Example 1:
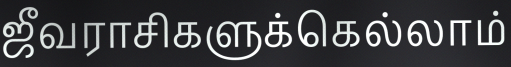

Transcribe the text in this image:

ஜீவராசிகளுக்கெல்லாம்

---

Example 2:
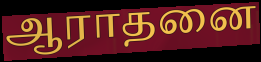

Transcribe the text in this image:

ஆராதனை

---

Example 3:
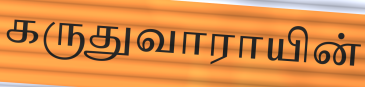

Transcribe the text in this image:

கருதுவாராயின்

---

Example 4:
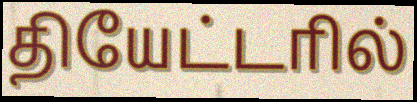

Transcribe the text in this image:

தியேட்டரில்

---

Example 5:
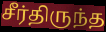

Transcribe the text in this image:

சீர்திருந்த